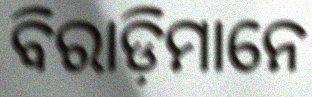
ବିରାଡ଼ିମାନେ